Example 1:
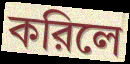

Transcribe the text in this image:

করিলে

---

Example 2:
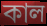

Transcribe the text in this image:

কাল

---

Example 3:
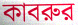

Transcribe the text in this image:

কাবরুর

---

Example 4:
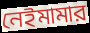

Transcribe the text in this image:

নেইমামার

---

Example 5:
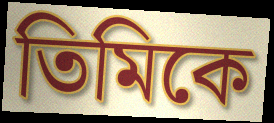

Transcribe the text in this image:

তিমিকে